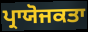
ਪ੍ਰਾਯੋਜਕਤਾ